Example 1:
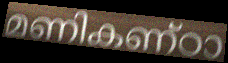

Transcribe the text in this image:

മണികണ്ഠാ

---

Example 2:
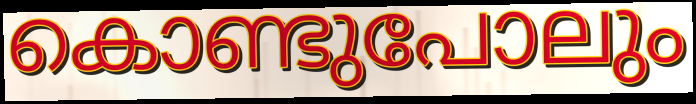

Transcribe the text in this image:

കൊണ്ടുപോലും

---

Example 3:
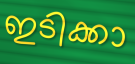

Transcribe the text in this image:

ഇടിക്കാ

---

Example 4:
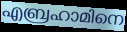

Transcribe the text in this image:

എബ്രഹാമിനെ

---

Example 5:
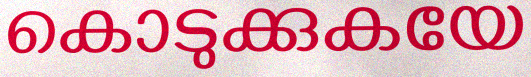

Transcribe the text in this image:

കൊടുക്കുകയേ